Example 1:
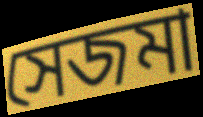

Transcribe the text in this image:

সেজমা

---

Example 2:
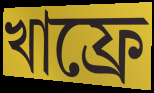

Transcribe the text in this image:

খাফ্রে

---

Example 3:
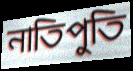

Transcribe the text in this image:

নাতিপুতি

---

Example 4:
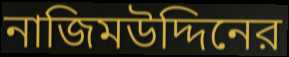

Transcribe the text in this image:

নাজিমউদ্দিনের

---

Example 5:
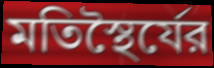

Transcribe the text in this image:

মতিস্থৈর্যের